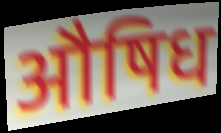
औषिध